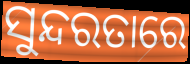
ସୁନ୍ଦରତାରେ